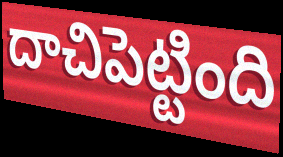
దాచిపెట్టింది